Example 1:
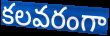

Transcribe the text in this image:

కలవరంగా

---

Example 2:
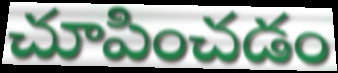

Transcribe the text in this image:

చూపించడం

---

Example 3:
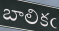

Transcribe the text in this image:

బాలికఁ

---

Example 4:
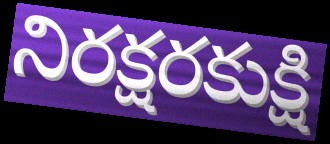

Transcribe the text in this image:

నిరక్షరకుక్షి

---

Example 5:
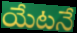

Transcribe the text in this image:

యేటనే